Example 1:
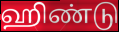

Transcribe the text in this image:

ஹிண்டு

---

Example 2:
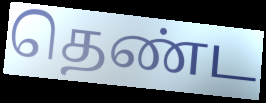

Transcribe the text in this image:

தெண்ட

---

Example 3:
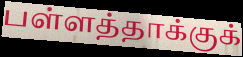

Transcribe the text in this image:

பள்ளத்தாக்குக்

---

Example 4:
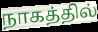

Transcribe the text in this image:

நாகத்தில்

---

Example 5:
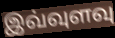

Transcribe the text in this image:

இவ்வுளவு